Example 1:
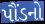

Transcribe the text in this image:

પૌંડનો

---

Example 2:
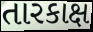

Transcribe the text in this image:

તારકાક્ષ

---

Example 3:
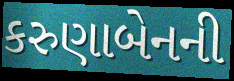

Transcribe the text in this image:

કરુણાબેનની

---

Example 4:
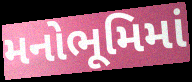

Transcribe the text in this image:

મનોભૂમિમાં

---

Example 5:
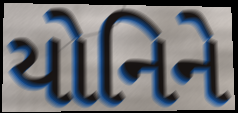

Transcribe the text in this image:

યોનિને